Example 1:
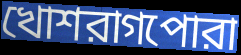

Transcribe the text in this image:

খোশরাগপোরা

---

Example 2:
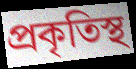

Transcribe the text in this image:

প্রকৃতিস্থ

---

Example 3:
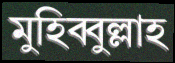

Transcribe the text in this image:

মুহিব্বুল্লাহ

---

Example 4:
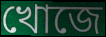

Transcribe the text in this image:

খোজে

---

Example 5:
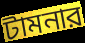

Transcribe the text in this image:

টামনার